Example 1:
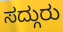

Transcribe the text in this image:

ಸದ್ಗುರು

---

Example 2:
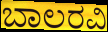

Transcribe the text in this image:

ಬಾಲರವಿ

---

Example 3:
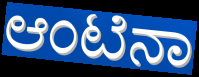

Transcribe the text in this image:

ಆಂಟೆನಾ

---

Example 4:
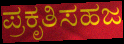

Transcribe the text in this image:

ಪ್ರಕೃತಿಸಹಜ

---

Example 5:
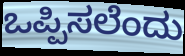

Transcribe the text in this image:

ಒಪ್ಪಿಸಲೆಂದು